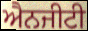
ਐਨਜੀਟੀ